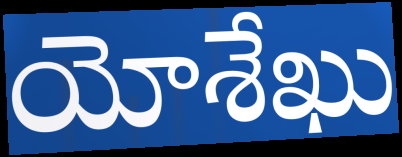
యోశేఖు